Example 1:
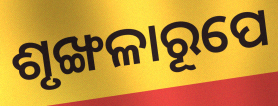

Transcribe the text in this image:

ଶୃଙ୍ଖଳାରୂପେ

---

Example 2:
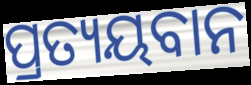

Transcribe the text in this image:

ପ୍ରତ୍ୟୟବାନ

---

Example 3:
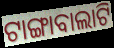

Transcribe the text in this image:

ଟାଙ୍ଗାବାଲାଟି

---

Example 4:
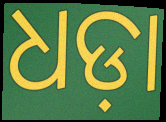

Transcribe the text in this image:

ଧଡ଼ା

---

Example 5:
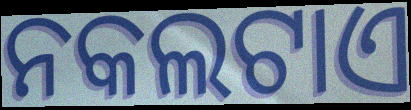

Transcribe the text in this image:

ନକଲଟାଏ